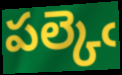
పల్కెఁ